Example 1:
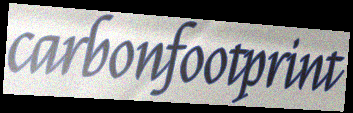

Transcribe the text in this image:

carbonfootprint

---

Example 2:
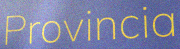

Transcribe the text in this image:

Provincia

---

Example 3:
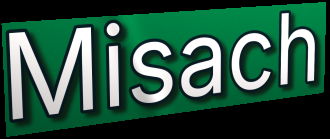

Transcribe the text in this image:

Misach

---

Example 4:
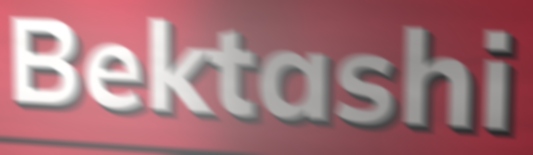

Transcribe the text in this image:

Bektashi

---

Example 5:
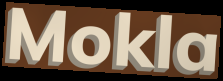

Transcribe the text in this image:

Mokla